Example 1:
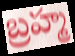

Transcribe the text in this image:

బ్రహ్మ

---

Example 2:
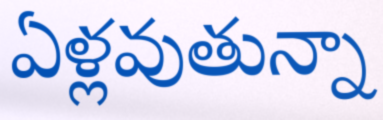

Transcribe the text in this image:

ఏళ్లవుతున్నా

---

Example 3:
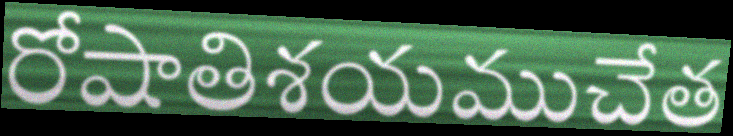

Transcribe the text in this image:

రోషాతిశయముచేత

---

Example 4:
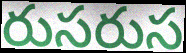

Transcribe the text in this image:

రుసరుస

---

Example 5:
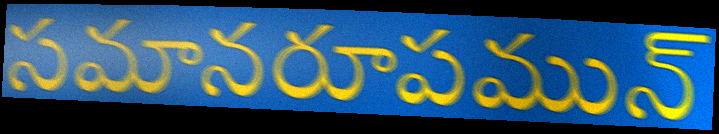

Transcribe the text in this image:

సమానరూపమున్